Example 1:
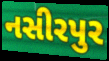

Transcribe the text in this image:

નસીરપુર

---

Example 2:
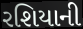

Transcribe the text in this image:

રશિયાની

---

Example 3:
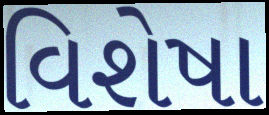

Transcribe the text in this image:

વિશેષા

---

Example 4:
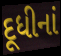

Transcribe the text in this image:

દૂધીનાં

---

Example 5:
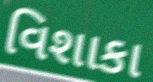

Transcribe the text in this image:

વિશાકા